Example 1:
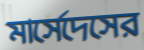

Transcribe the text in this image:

মার্সেদেসের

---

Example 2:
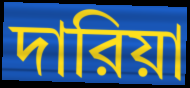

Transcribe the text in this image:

দারিয়া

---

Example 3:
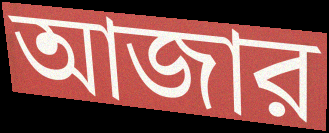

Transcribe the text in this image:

আজার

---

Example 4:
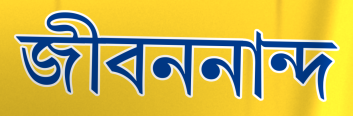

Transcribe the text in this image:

জীবননান্দ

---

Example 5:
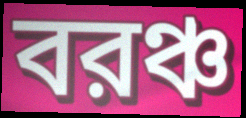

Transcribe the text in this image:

বরঞ্চ